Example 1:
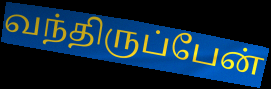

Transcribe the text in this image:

வந்திருப்பேன்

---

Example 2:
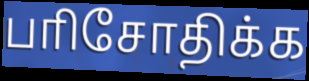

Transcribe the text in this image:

பரிசோதிக்க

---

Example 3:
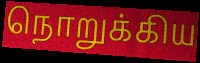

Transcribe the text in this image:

நொறுக்கிய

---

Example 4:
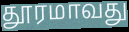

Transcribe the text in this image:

தூரமாவது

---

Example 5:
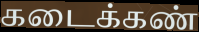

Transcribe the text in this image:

கடைக்கண்